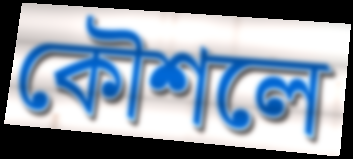
কৌশলে